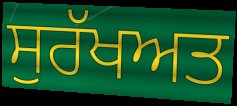
ਸੁਰੱਖਅਤ